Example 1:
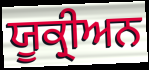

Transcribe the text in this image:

ਯੂਕ੍ਰੀਅਨ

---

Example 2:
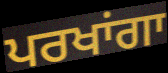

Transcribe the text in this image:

ਪਰਖਾਂਗਾ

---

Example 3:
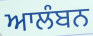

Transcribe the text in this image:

ਆਲੰਬਨ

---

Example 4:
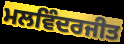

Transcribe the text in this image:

ਮਲਵਿੰਦਰਜੀਤ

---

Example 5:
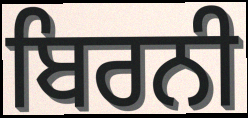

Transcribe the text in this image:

ਬਿਰਨੀ